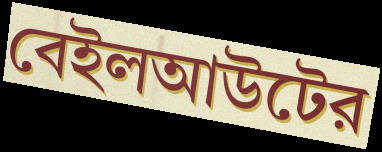
বেইলআউটের